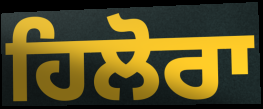
ਹਿਲੋਰਾ